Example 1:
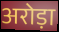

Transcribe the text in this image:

अरोड़ा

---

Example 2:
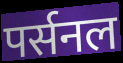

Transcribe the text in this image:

पर्सनल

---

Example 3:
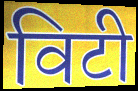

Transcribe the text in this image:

विटी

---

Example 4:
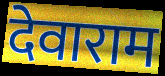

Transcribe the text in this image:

देवाराम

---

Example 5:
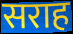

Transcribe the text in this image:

सराह